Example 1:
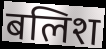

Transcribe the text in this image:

बलिश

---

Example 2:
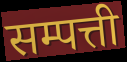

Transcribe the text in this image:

सम्पत्ती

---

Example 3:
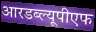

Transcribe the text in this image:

आरडब्ल्यूपीएफ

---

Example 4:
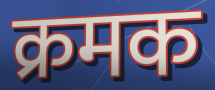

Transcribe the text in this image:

क्रमक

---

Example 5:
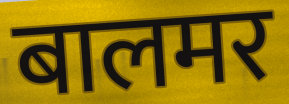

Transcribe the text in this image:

बालमर